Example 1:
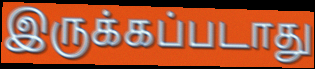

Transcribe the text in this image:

இருக்கப்படாது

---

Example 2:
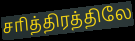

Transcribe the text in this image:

சரித்திரத்திலே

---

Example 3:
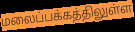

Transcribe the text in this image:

மலைப்பக்கத்திலுள்ள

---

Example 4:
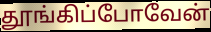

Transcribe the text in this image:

தூங்கிப்போவேன்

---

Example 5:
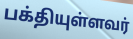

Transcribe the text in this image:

பக்தியுள்ளவர்